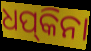
ଧପ୍‍କିନା